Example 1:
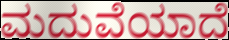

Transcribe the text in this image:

ಮದುವೆಯಾದೆ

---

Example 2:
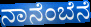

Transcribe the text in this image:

ನಾನೆಂಬೆನೆ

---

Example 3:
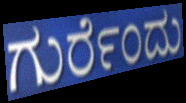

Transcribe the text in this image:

ಗುರ್ರೆಂದು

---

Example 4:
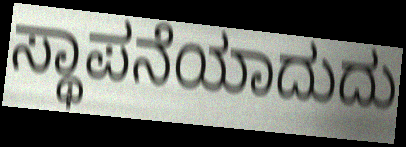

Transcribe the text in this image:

ಸ್ಥಾಪನೆಯಾದುದು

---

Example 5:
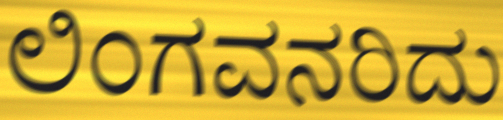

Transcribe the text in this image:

ಲಿಂಗವನರಿದು